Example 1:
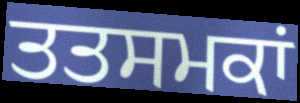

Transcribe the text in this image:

ਤਤਸਮਕਾਂ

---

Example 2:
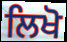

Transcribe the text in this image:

ਲਿਖੋ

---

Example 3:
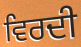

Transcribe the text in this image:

ਵਿਰਦੀ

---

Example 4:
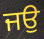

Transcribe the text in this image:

ਜਉ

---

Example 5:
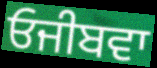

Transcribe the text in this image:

ਓਜੀਬਵਾ